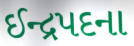
ઈન્દ્રપદના